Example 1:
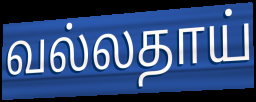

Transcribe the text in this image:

வல்லதாய்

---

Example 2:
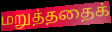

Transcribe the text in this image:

மறுத்ததைக்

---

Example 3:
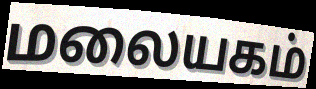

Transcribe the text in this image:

மலையகம்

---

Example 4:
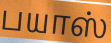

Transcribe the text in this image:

பயாஸ்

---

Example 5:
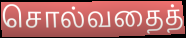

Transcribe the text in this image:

சொல்வதைத்